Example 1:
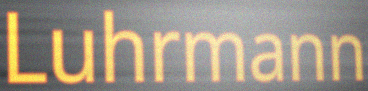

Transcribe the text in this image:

Luhrmann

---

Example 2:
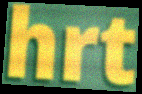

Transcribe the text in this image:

hrt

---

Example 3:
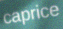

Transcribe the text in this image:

caprice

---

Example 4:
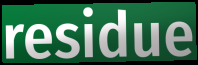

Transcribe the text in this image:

residue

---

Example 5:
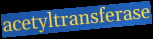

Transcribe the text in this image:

acetyltransferase